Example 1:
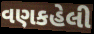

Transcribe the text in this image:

વણકહેલી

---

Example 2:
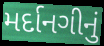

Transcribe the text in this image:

મર્દાનગીનું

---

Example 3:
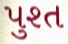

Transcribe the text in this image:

પુશ્ત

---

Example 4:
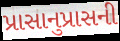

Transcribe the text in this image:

પ્રાસાનુપ્રાસની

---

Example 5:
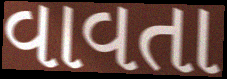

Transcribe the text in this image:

વાવતા